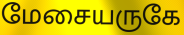
மேசையருகே